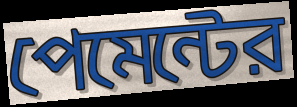
পেমেন্টের